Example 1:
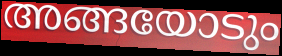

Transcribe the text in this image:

അങ്ങയോടും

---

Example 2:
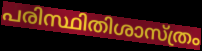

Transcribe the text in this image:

പരിസ്ഥിതിശാസ്ത്രം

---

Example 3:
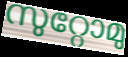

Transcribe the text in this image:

സുറ്റോമു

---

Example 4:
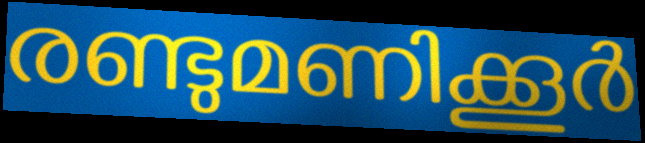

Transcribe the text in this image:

രണ്ടുമണിക്കൂർ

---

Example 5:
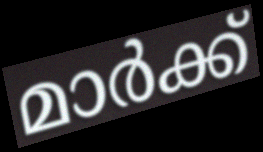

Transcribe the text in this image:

മാർക്ക്